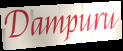
Dampuru